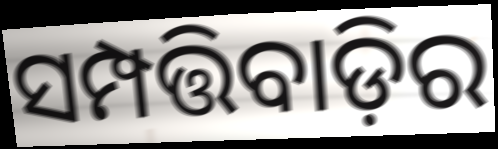
ସମ୍ପତ୍ତିବାଡ଼ିର